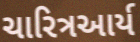
ચારિત્રઆર્ય